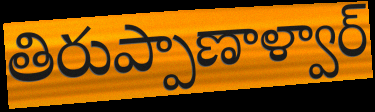
తిరుప్పాణాళ్వార్